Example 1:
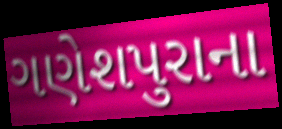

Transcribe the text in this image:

ગણેશપુરાના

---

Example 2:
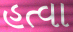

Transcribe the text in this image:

હત્વા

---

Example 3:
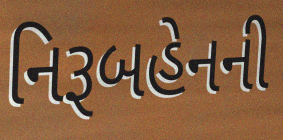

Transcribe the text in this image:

નિરૂબહેનની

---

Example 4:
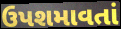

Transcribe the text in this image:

ઉપશમાવતાં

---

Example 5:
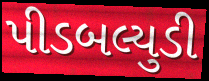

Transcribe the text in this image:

પીડબલ્યુડી